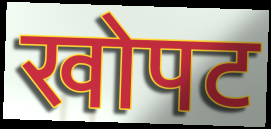
खोपट